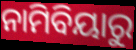
ନାମିବିୟାରୁ